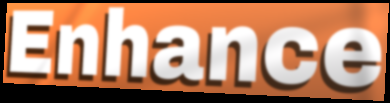
Enhance